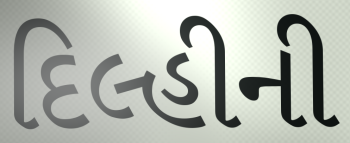
દિલ્હીની